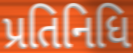
પ્રતિનિધિ